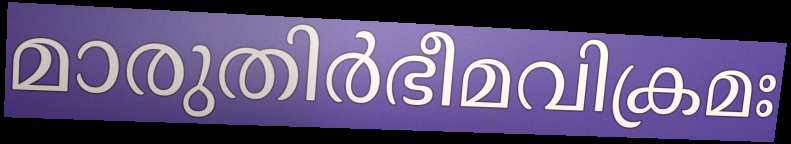
മാരുതിർഭീമവിക്രമഃ